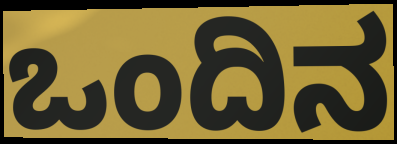
ಒಂದಿನ